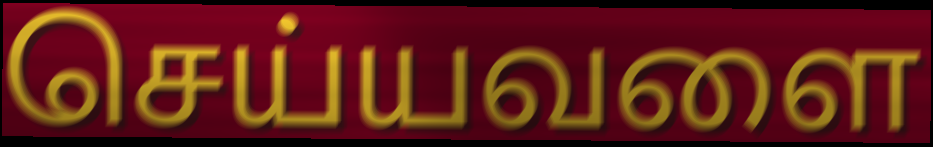
செய்யவளை